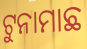
ଟୁନାମାଛ